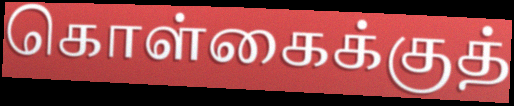
கொள்கைக்குத்